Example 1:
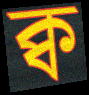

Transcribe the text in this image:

ক্ব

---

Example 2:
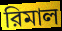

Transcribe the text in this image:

রিমাল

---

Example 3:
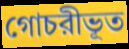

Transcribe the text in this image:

গোচরীভূত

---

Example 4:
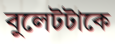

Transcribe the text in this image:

বুলেটটাকে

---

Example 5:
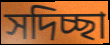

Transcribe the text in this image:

সদিচ্ছা